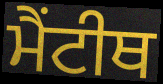
ਮੈਂਟੀਥ